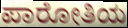
ಪಾರೋತಿಯ